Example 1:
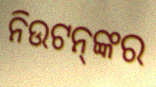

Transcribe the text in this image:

ନିଉଟନ୍‌ଙ୍କର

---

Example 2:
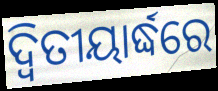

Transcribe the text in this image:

ଦ୍ବିତୀୟାର୍ଦ୍ଧରେ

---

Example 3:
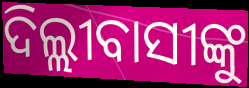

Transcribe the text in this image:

ଦିଲ୍ଲୀବାସୀଙ୍କୁ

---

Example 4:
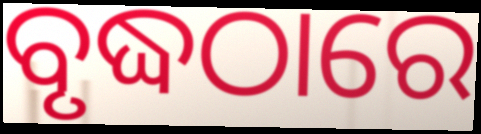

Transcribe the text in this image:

ବୃଦ୍ଧଠାରେ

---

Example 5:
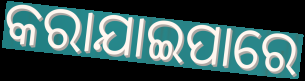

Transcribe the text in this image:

କରାଯାଇପାରେ